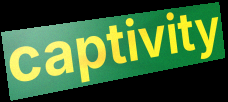
captivity